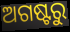
ଅଗଷ୍ଟରୁ